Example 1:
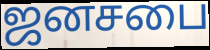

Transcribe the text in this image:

ஜனசபை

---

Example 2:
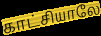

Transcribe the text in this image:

காட்சியாலே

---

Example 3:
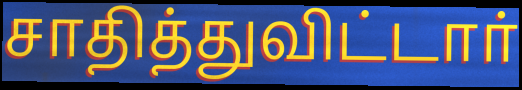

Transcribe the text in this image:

சாதித்துவிட்டார்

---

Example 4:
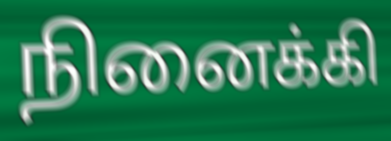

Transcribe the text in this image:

நினைக்கி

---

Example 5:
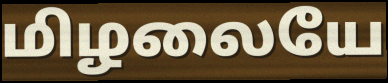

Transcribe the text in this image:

மிழலையே